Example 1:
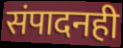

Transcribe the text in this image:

संपादनही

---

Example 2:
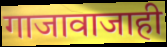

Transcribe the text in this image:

गाजावाजाही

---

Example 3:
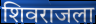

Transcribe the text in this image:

शिवराजला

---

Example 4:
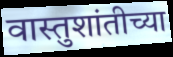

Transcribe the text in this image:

वास्तुशांतीच्या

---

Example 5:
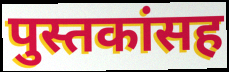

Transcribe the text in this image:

पुस्तकांसह